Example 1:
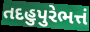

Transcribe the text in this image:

તદહુપુરેભત્તં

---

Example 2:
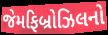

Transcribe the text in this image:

જેમફિબ્રોઝિલનો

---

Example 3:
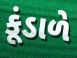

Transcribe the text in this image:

કૂંડાળે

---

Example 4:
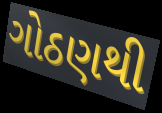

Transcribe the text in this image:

ગોઠણથી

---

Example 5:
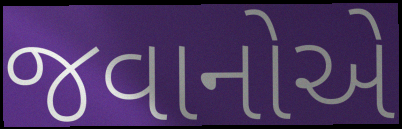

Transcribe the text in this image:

જવાનોએ